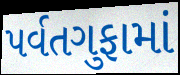
પર્વતગુફામાં